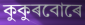
কুকুৰবোৰে